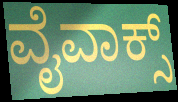
ವೈವಾಕ್ಸ್